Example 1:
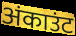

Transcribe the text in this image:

अंकाउंट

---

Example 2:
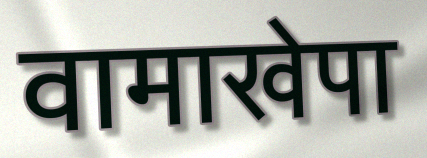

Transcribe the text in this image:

वामाखेपा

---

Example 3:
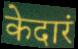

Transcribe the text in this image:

केदारं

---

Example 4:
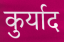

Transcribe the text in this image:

कुर्याद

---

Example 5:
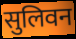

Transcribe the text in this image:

सुलिवन